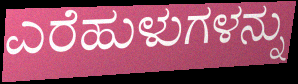
ಎರೆಹುಳುಗಳನ್ನು